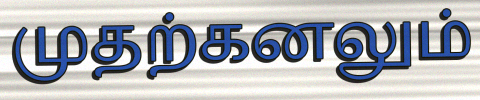
முதற்கனலும்